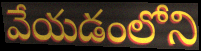
వేయడంలోని